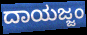
ದಾಯಜ್ಜಂ